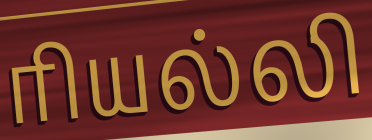
ரியல்லி